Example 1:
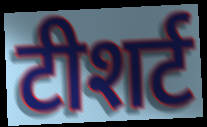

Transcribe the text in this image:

टीशर्ट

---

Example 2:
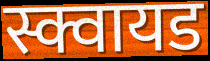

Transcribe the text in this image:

स्क्वायड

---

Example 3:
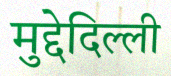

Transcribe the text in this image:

मुद्देदिल्ली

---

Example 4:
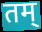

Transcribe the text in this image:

तम्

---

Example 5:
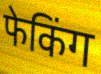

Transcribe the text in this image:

फेकिंग